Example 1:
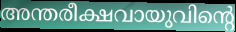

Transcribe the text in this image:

അന്തരീക്ഷവായുവിന്റെ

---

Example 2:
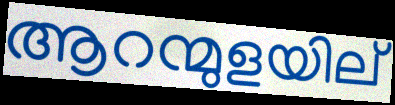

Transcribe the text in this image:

ആറന്മുളയില്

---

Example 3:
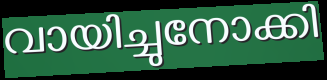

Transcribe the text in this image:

വായിച്ചുനോക്കി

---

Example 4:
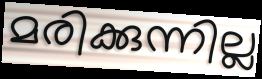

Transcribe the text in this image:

മരിക്കുന്നില്ല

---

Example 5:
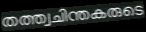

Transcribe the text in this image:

തത്ത്വചിന്തകരുടെ